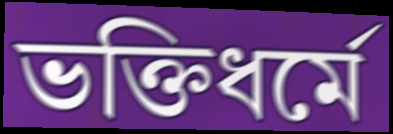
ভক্তিধর্মে